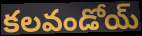
కలవండోయ్